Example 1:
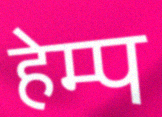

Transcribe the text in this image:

हेम्प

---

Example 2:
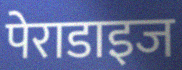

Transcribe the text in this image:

पेराडाइज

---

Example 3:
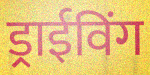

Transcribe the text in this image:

ड्राईविंग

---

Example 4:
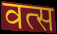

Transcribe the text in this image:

वत्स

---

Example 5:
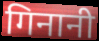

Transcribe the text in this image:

गिनानी